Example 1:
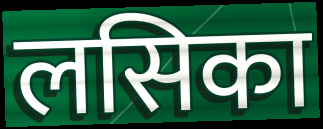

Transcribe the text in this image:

लसिका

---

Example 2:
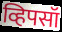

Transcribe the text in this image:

व्हिपसॉ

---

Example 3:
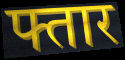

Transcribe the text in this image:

फ्तार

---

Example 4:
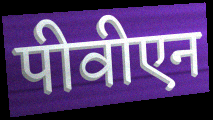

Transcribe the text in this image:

पीवीएन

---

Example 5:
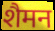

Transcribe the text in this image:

शैमन